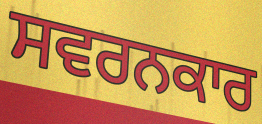
ਸਵਰਨਕਾਰ